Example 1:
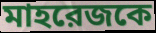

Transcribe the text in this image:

মাহরেজকে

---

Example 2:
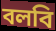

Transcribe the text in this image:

বলবি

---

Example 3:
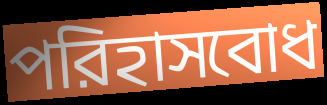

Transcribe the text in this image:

পরিহাসবোধ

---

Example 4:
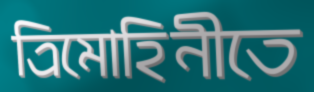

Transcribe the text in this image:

ত্রিমোহিনীতে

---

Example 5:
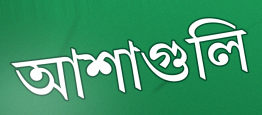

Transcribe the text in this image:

আশাগুলি